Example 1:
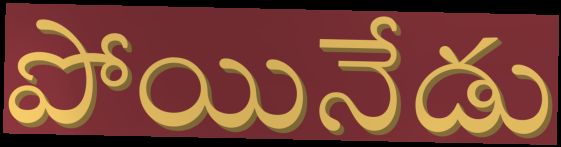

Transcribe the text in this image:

పోయినేడు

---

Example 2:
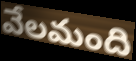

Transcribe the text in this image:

వేలమంది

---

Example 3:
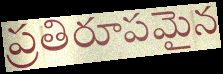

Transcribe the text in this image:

ప్రతిరూపమైన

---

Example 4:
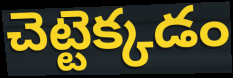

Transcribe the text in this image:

చెట్టెక్కడం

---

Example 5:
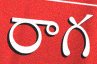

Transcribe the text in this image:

రాగ